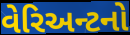
વેરિઅન્ટનો